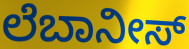
ಲೆಬಾನೀಸ್